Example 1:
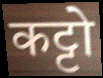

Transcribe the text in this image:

कट्टो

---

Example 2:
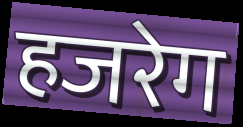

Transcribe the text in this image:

हजरेग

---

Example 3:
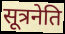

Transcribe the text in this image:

सूत्रनेति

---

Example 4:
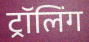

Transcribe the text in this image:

ट्रॉलिंग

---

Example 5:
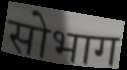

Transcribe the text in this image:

सोभाग